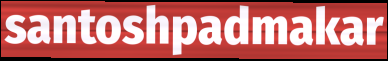
santoshpadmakar